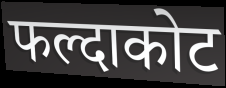
फल्दाकोट